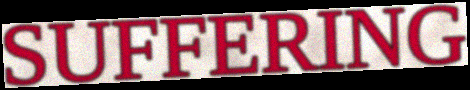
SUFFERING